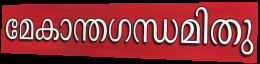
മേകാന്തഗന്ധമിതു